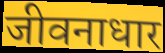
जीवनाधार